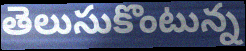
తెలుసుకొంటున్న